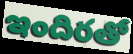
ఇందిరతో